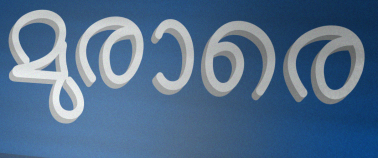
മുരാരെ